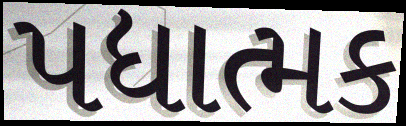
પદ્યાત્મક